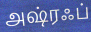
அஷ்ரஃப்